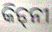
କିଡ୍‍ନୀ